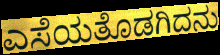
ಎಸೆಯತೊಡಗಿದನು